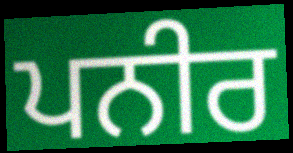
ਪਨੀਰ